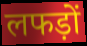
लफड़ों